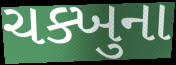
ચક્ખુના